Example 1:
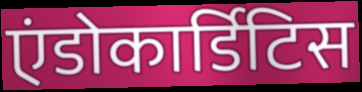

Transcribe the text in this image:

एंडोकार्डिटिस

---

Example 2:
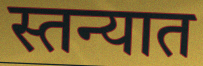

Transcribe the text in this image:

स्तन्यात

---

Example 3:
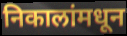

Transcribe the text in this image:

निकालांमधून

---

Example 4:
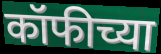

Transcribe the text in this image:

कॉफीच्या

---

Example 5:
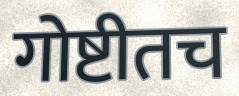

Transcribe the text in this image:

गोष्टीतच